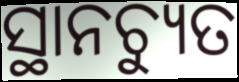
ସ୍ଥାନଚ୍ୟୁତ